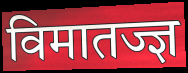
विमातज्ज्ञ